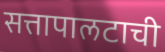
सत्तापालटाची